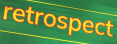
retrospect